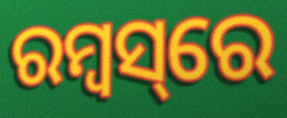
ରମ୍ବସ୍‌ରେ